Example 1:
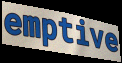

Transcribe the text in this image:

emptive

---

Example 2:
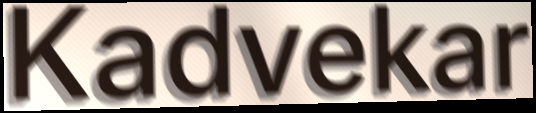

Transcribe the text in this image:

Kadvekar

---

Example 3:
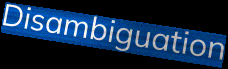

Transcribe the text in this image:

Disambiguation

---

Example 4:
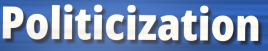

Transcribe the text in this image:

Politicization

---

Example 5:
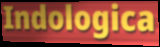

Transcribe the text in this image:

Indologica